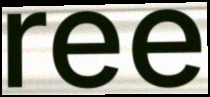
ree